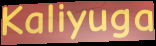
Kaliyuga